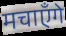
मचाएँगे